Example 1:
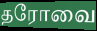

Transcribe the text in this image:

தரோவை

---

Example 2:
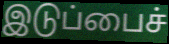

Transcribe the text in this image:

இடுப்பைச்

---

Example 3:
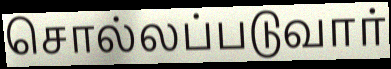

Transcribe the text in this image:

சொல்லப்படுவார்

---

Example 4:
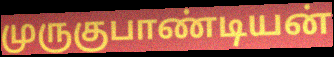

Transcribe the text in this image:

முருகுபாண்டியன்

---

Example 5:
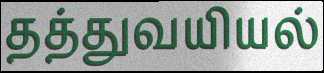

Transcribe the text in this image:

தத்துவயியல்